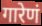
गारेणं